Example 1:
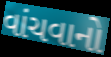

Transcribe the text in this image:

વાંચવાનો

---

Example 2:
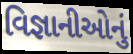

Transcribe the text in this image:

વિજ્ઞાનીઓનું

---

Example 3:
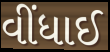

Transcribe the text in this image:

વીંધાઈ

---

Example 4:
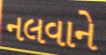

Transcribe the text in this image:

નલવાને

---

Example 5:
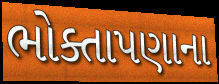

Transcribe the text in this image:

ભોક્તાપણાના